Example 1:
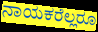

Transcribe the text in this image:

ನಾಯಕರೆಲ್ಲರೂ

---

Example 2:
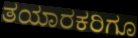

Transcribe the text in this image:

ತಯಾರಕರಿಗೂ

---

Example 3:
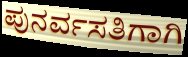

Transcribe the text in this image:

ಪುನರ್ವಸತಿಗಾಗಿ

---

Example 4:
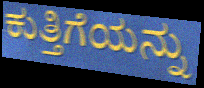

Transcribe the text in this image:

ಕುತ್ತಿಗೆಯನ್ನು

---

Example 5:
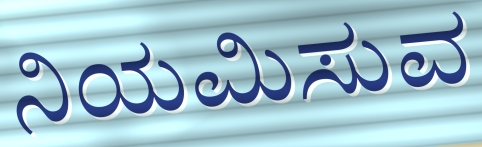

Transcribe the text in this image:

ನಿಯಮಿಸುವ